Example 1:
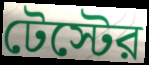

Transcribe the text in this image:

টেস্টের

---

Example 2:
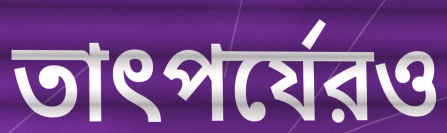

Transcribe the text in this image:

তাৎপর্যেরও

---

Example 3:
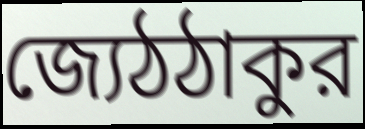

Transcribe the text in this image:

জ্যেঠঠাকুর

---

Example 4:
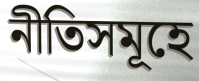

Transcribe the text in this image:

নীতিসমূহে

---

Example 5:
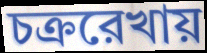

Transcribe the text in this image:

চক্ররেখায়